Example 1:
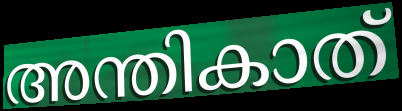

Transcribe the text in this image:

അന്തികാത്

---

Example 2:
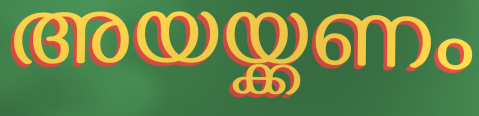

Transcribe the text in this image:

അയയ്ക്കണം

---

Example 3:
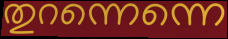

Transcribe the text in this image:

തുറന്നെന്നെ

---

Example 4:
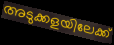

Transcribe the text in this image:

അടുക്കളയിലേക്ക്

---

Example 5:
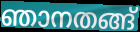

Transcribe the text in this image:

ഞാനതങ്ങ്